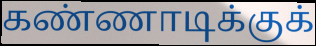
கண்ணாடிக்குக்